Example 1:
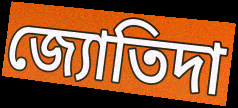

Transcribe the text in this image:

জ্যোতিদা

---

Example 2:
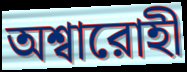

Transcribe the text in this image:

অশ্বারোহী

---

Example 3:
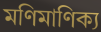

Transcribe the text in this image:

মণিমাণিক্য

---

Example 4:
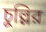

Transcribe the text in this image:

চুল্লির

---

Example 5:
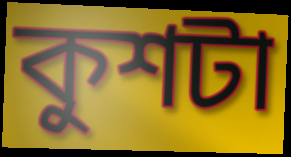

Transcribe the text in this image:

কুশটা